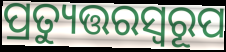
ପ୍ରତ୍ୟୁତ୍ତରସ୍ଵରୂପ